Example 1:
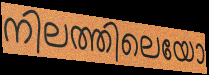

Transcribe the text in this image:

നിലത്തിലെയോ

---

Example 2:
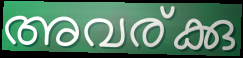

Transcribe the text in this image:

അവര്ക്കു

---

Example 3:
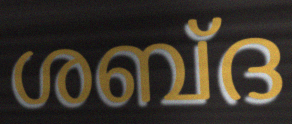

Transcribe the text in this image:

ശബ്‌ദ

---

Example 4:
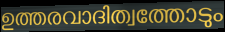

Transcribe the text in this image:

ഉത്തരവാദിത്വത്തോടും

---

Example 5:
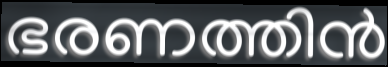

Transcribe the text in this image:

ഭരണത്തിൻ